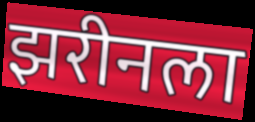
झरीनला